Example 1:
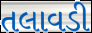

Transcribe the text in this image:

તલાવડી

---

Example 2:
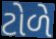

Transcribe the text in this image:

ટોળે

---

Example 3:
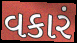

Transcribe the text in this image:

વકારં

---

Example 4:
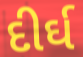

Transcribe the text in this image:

દીર્ઘ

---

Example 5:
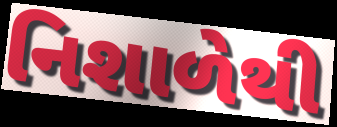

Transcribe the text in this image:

નિશાળેથી